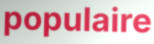
populaire